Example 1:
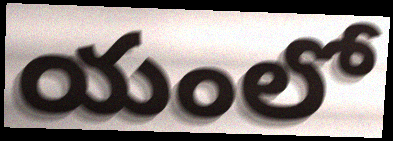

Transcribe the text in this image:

యంలో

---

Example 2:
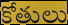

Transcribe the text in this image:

కోతులు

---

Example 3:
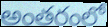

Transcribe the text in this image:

అంతరంలో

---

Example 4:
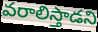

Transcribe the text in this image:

వరాలిస్తాడని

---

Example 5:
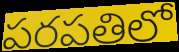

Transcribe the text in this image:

పరపతిలో